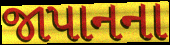
જાપાનના